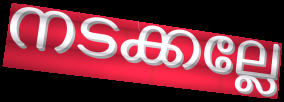
നടക്കല്ലേ